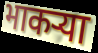
भाकर्‍या